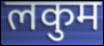
लकुम